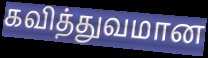
கவித்துவமான